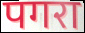
पगरा